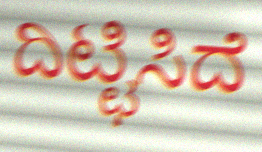
ದಿಟ್ಟಿಸಿದೆ